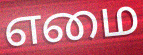
எமை